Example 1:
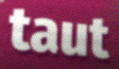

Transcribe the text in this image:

taut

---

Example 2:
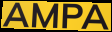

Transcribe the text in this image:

AMPA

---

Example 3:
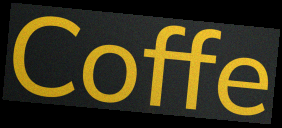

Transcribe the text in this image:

Coffe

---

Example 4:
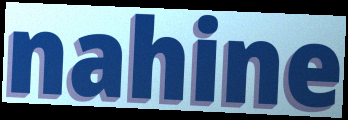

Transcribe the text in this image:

nahine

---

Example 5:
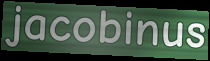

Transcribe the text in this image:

jacobinus